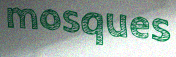
mosques